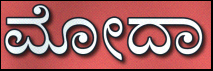
ಮೋದಾ